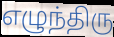
எழுந்திரு